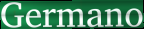
Germano